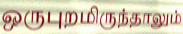
ஒருபுறமிருந்தாலும்